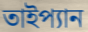
তাইপ্যান